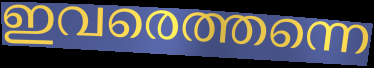
ഇവരെത്തന്നെ